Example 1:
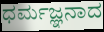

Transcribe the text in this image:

ಧರ್ಮಜ್ಞನಾದ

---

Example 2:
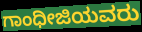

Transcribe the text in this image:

ಗಾಂಧೀಜಿಯವರು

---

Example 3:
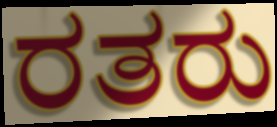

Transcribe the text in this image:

ರತರು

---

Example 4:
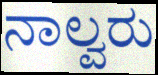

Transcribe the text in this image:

ನಾಲ್ವರು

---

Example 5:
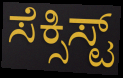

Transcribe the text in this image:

ಸೆಕ್ಸಿಸ್ಟ್